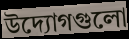
উদ্যোগগুলো